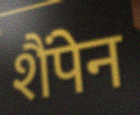
शैंपेन